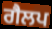
ਗੈਲਪ